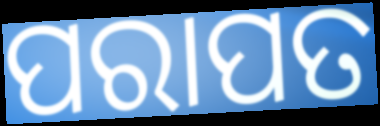
ପରାପତ